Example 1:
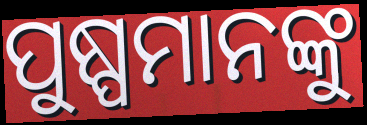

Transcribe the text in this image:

ପୁଷ୍ପମାନଙ୍କୁ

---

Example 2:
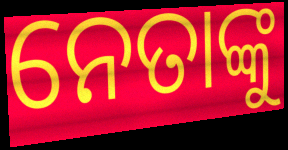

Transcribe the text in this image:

ନେତାଙ୍କୁ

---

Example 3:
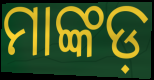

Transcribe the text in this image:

ମାଙ୍କଡ଼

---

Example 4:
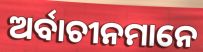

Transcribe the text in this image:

ଅର୍ବାଚୀନମାନେ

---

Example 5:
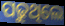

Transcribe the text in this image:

ପଢୁଥିଲେ